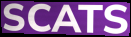
SCATS